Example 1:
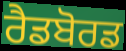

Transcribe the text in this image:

ਰੈਡਬੋਰਡ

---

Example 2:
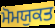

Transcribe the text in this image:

ਮੋਮਯੁਕਤ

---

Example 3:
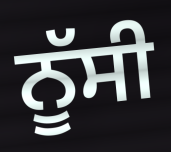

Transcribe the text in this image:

ਨੂੱਸੀ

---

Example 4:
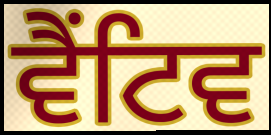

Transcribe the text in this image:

ਵੈਂਟਿਵ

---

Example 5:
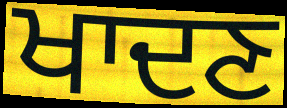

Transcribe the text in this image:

ਖਾਦਣ